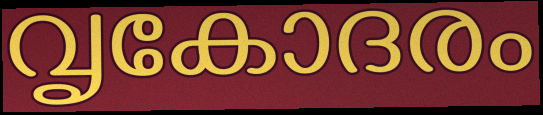
വൃകോദരം